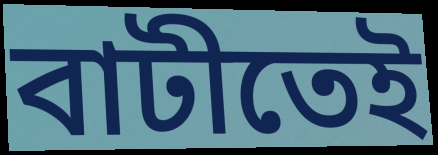
বাটীতেই